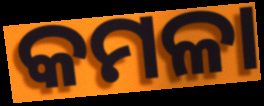
କମଳା